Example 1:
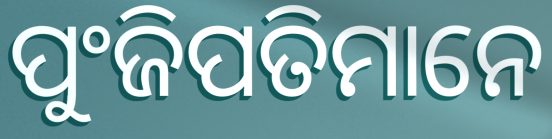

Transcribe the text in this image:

ପୁଂଜିପତିମାନେ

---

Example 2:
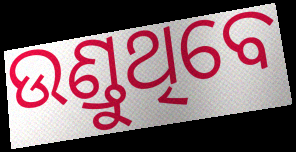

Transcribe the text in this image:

ଉଣ୍ଡୁଥିବେ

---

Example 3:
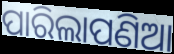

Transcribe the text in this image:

ପାରିଲାପଣିଆ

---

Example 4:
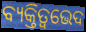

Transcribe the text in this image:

ବ୍ୟକ୍ତିତ୍ୱଭେଦ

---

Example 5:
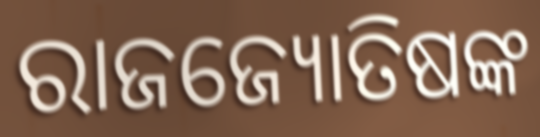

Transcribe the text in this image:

ରାଜଜ୍ୟୋତିଷଙ୍କ